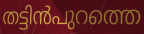
തട്ടിൻപുറത്തെ